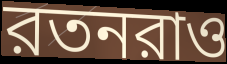
রতনরাও